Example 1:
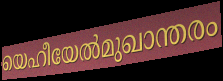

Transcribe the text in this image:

യെഹീയേൽമുഖാന്തരം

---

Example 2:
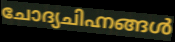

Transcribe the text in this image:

ചോദ്യചിഹ്നങ്ങൾ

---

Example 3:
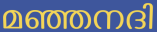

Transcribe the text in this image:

മഞ്ഞനദി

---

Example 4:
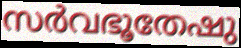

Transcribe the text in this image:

സർവഭൂതേഷു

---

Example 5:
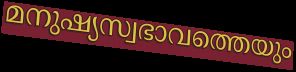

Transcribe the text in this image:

മനുഷ്യസ്വഭാവത്തെയും